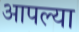
आपल्या